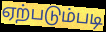
ஏற்படும்படி